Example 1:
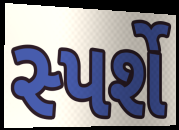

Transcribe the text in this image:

સ્પર્શે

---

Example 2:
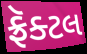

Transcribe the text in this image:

ફ્રૅક્ટલ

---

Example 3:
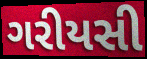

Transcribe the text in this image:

ગરીયસી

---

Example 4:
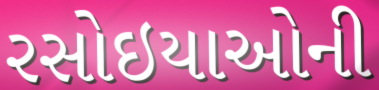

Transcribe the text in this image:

રસોઇયાઓની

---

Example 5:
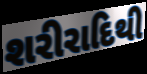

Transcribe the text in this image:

શરીરાદિથી